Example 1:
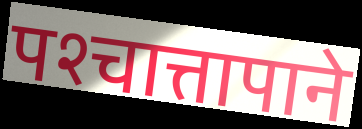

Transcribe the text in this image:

पश्चात्तापाने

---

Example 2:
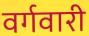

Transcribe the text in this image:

वर्गवारी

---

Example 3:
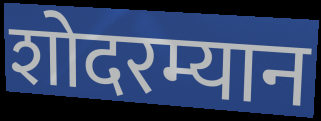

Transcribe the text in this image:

शोदरम्यान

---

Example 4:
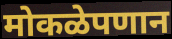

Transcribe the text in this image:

मोकळेपणान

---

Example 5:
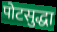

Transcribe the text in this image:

पोटसुद्धा